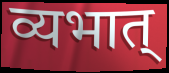
व्यभात्